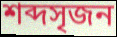
শব্দসৃজন